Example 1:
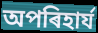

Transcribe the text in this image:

অপৰিহাৰ্য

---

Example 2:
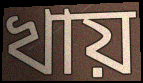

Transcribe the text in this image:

খায়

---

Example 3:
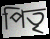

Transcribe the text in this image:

পিতৃ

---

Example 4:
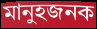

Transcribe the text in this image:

মানুহজনক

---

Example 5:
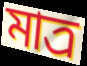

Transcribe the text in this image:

মাত্ৰ